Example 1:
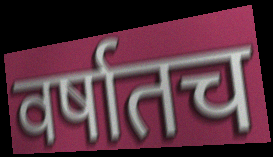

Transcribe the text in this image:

वर्षातच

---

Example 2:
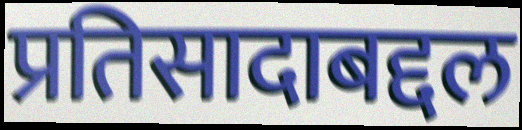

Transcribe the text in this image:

प्रतिसादाबद्दल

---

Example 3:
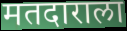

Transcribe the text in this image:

मतदाराला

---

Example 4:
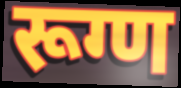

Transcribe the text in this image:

रूग्ण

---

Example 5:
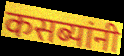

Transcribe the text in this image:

कसब्यांनी